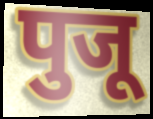
पुजू